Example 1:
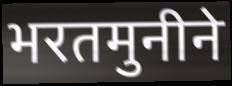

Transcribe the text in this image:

भरतमुनीने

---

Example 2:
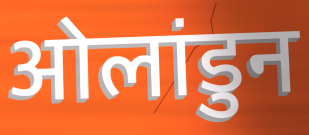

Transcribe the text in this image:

ओलांडुन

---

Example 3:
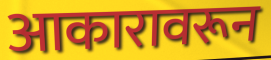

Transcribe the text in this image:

आकारावरून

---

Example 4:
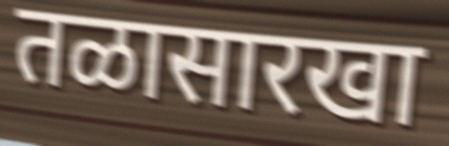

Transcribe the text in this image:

तळासारखा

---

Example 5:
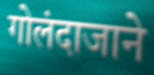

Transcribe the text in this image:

गोलंदाजाने